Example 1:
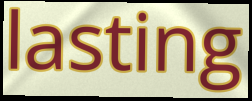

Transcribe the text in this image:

lasting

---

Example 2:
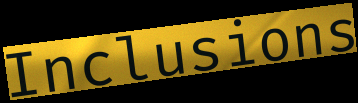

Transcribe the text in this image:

Inclusions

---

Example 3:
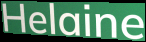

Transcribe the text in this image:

Helaine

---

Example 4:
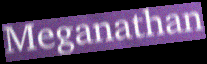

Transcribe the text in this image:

Meganathan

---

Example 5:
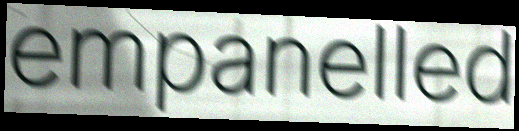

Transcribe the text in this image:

empanelled